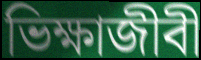
ভিক্ষাজীবী